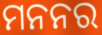
ମନନର